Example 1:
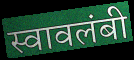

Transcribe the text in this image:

स्वावलंबी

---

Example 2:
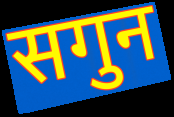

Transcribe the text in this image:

सगुन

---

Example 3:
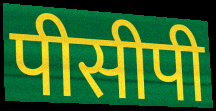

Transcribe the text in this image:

पीसीपी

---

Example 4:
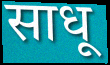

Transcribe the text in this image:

साधू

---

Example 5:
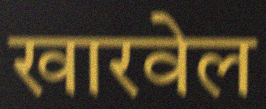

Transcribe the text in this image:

खारवेल